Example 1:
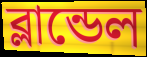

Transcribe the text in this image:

ব্লান্ডেল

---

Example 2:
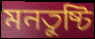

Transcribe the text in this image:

মনতুষ্টি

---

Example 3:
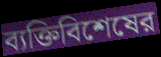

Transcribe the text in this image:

ব্যক্তিবিশেষের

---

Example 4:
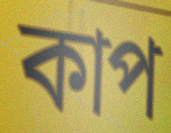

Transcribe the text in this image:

কাপ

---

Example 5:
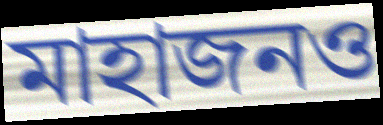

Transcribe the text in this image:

মাহাজনও